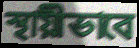
স্থায়ীভাবে